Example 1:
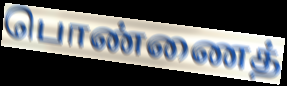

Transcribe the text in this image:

பொண்ணைத்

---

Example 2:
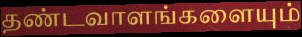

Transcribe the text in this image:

தண்டவாளங்களையும்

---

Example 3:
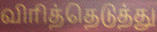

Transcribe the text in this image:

விரித்தெடுத்து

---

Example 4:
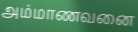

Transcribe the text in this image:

அம்மாணவனை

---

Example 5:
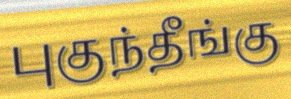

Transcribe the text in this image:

புகுந்தீங்கு